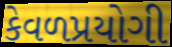
કેવળપ્રયોગી